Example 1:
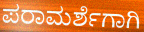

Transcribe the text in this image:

ಪರಾಮರ್ಶೆಗಾಗಿ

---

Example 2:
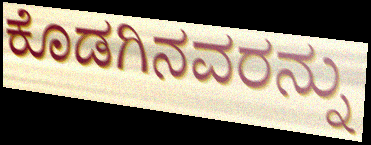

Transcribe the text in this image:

ಕೊಡಗಿನವರನ್ನು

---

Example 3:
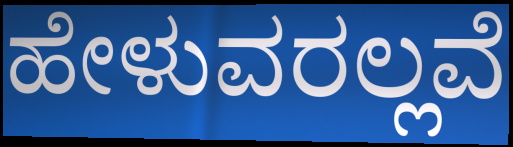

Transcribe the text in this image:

ಹೇಳುವರಲ್ಲವೆ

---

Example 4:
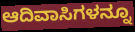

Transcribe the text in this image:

ಆದಿವಾಸಿಗಳನ್ನೂ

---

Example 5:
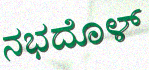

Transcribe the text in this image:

ನಭದೊಳ್